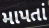
માપતાં